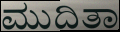
ಮುದಿತಾ